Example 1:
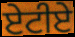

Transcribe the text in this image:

ਏਟੀਏ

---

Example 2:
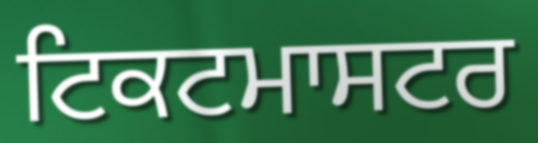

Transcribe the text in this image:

ਟਿਕਟਮਾਸਟਰ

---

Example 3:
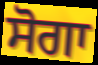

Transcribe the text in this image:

ਸੋਗਾ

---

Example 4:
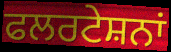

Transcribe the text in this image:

ਫਲਰਟੇਸ਼ਨਾਂ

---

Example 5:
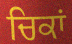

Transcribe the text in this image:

ਚਿਕਾਂ